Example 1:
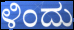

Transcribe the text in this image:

ಳಿಂದು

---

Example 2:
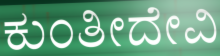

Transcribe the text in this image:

ಕುಂತೀದೇವಿ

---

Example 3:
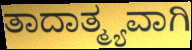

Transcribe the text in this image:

ತಾದಾತ್ಮ್ಯವಾಗಿ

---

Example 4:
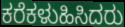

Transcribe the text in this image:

ಕರೆಕಳುಹಿಸಿದರು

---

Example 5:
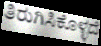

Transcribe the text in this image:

ತಿರುಗಿಸಿಕೊಳ್ಳದೆ